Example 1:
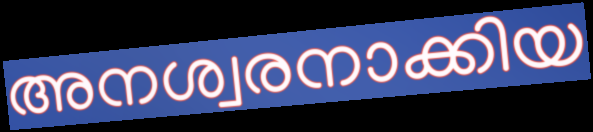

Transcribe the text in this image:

അനശ്വരനാക്കിയ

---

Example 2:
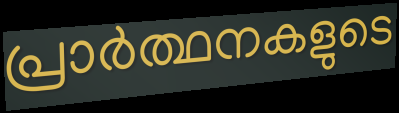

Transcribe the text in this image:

പ്രാർത്ഥനകളുടെ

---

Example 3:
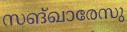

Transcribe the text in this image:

സങ്ഖാരേസു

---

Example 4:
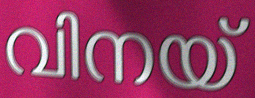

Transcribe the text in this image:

വിനയ്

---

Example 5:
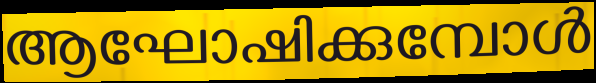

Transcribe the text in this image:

ആഘോഷിക്കുമ്പോൾ